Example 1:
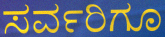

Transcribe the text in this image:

ಸರ್ವರಿಗೂ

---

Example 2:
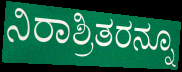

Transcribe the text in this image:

ನಿರಾಶ್ರಿತರನ್ನೂ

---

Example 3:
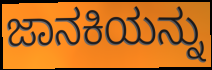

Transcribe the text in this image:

ಜಾನಕಿಯನ್ನು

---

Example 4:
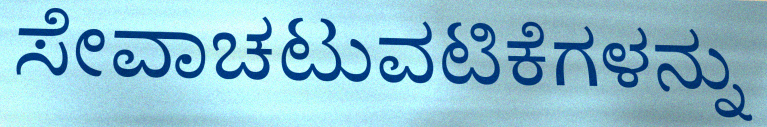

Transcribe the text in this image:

ಸೇವಾಚಟುವಟಿಕೆಗಳನ್ನು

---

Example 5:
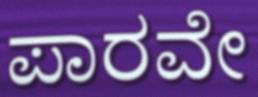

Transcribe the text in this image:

ಪಾರವೇ